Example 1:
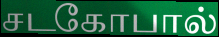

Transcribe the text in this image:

சடகோபால்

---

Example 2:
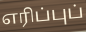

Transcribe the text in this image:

எரிப்புப்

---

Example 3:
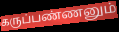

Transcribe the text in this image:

கருப்பண்ணனும்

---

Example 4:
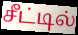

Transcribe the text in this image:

சீட்டில்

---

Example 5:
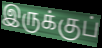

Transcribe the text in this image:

இருக்குப்